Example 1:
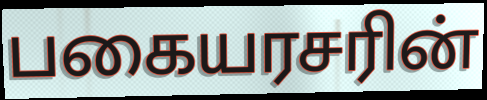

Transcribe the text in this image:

பகையரசரின்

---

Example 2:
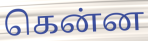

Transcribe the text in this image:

கென்ன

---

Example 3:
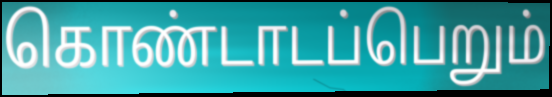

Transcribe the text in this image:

கொண்டாடப்பெறும்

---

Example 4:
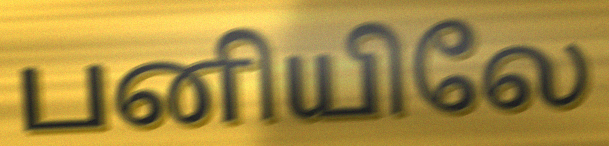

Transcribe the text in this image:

பனியிலே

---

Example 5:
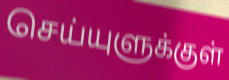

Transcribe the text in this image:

செய்யுளுக்குள்